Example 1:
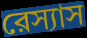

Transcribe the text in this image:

রেস্যাস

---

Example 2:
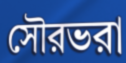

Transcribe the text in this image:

সৌরভরা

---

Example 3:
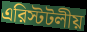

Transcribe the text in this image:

এরিস্টটলীয়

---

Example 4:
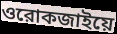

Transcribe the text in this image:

ওরোকজাইয়ে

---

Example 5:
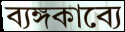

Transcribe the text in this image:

ব্যঙ্গকাব্যে